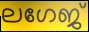
ലഗേജ്